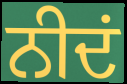
ਨੀਦਂ